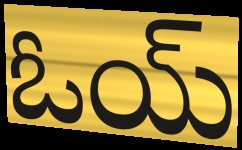
ఓయ్